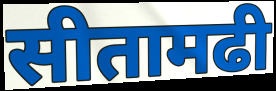
सीतामढी